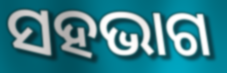
ସହଭାଗ